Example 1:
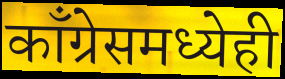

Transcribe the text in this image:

काँग्रेसमध्येही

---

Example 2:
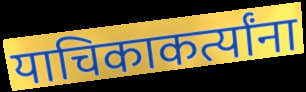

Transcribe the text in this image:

याचिकाकर्त्यांना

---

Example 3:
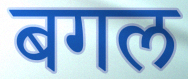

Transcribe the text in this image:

बगल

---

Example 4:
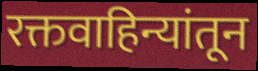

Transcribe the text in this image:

रक्तवाहिन्यांतून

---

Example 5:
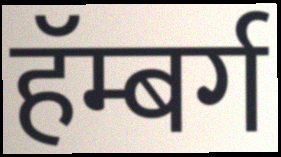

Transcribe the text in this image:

हॅम्बर्ग